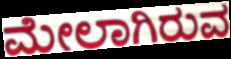
ಮೇಲಾಗಿರುವ